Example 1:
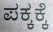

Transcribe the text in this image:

ಪಕ್ಕಕ್ಕೆ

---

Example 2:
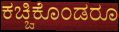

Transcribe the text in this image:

ಕಚ್ಚಿಕೊಂಡರೂ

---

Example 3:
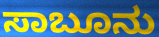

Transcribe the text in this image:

ಸಾಬೂನು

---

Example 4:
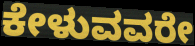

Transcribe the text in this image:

ಕೇಳುವವರೇ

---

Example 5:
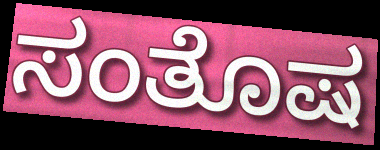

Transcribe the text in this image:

ಸಂತೊಷ